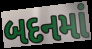
બદનમાં